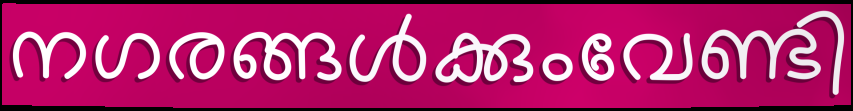
നഗരങ്ങൾക്കുംവേണ്ടി